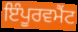
ਇੰਪੂਰਵਮੈਂਟ